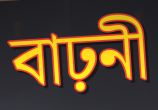
বাঢ়নী